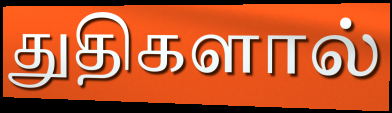
துதிகளால்